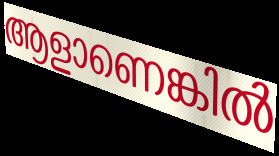
ആളാണെങ്കിൽ